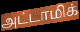
அட்டாமிக்